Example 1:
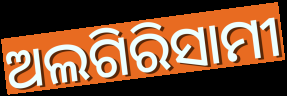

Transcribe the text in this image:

ଅଲଗିରିସାମୀ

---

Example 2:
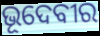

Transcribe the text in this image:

ଭୂଦେବୀର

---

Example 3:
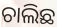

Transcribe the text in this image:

ଚାଲିଛ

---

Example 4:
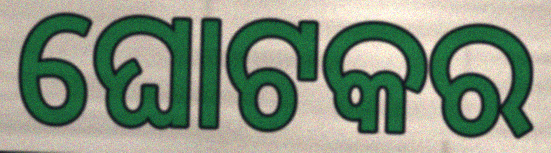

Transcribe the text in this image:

ଘୋଟକର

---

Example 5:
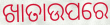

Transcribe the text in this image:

ଖାତାଉପରେ